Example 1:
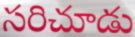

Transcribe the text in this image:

సరిచూడు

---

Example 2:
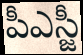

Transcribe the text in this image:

పీఎస్జీ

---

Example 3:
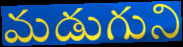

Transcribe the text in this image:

మడుగుని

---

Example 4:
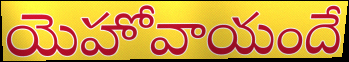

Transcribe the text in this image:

యెహోవాయందే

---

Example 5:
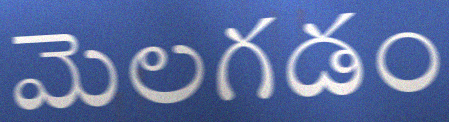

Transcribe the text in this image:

మెలగడం